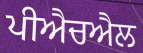
ਪੀਐਚਐਲ